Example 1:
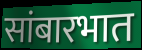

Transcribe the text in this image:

सांबारभात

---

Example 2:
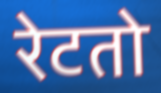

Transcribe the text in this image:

रेटतो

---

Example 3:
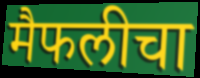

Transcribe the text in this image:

मैफलीचा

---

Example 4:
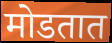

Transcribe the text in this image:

मोडतात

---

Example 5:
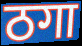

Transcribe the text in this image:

ठगा